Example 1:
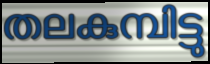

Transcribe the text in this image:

തലകുമ്പിട്ടു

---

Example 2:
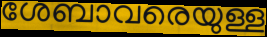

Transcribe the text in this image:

ശേബാവരെയുള്ള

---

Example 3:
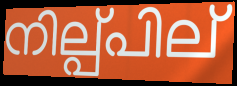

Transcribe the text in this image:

നില്പ്പില്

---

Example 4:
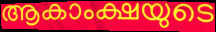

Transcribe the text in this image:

ആകാംക്ഷയുടെ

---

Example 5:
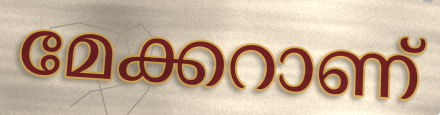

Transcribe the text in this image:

മേക്കറാണ്